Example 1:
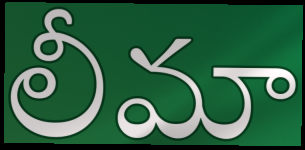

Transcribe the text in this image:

లీమా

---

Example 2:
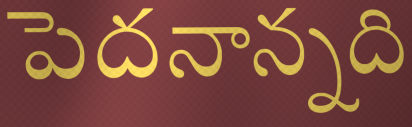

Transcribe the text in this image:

పెదనాన్నది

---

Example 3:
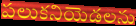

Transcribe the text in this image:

పలుకనియెడలను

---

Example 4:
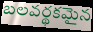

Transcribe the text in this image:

బలవర్థకమైన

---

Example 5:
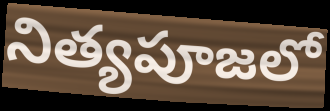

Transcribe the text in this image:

నిత్యపూజలో